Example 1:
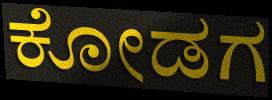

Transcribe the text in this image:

ಕೋಡಗ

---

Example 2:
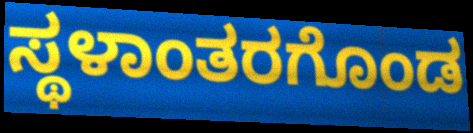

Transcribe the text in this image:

ಸ್ಥಳಾಂತರಗೊಂಡ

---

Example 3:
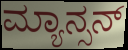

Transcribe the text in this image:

ಮ್ಯಾನ್ಸನ್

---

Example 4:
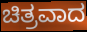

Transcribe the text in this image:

ಚಿತ್ರವಾದ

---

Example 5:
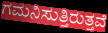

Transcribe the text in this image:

ಗಮನಿಸುತ್ತಿರುತ್ತವೆ